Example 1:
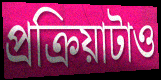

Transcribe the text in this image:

প্রক্রিয়াটাও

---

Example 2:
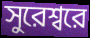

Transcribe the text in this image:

সুরেশ্বরে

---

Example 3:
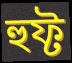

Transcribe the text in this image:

হুফ্ট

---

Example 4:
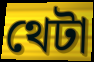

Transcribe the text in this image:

থেটা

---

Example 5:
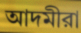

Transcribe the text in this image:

আদমীরা